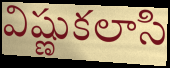
విష్ణుకలాసి